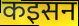
कइसन